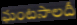
ఘంటసాలదీ